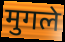
मुगले